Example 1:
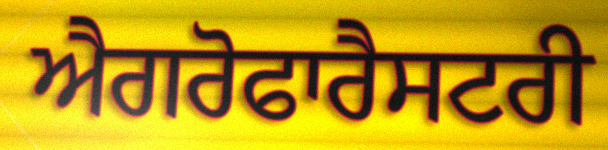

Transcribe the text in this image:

ਐਗਰੋਫਾਰੈਸਟਰੀ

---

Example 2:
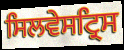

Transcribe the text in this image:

ਸਿਲਵੇਸਟ੍ਰਿਸ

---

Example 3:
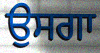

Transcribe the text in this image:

ਉਸਗਾ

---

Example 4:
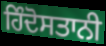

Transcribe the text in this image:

ਹਿੰਦੋਸਤਾਨੀ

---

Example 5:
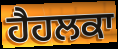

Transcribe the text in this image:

ਹੈਹਲਕਾ